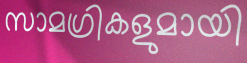
സാമഗ്രികളുമായി